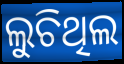
ଲୁଚିଥିଲ